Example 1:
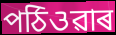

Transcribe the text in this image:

পঠিওৱাৰ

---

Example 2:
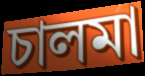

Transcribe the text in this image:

চালমা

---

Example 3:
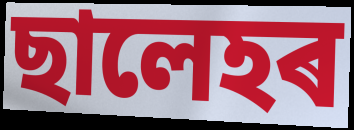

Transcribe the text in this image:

ছালেহৰ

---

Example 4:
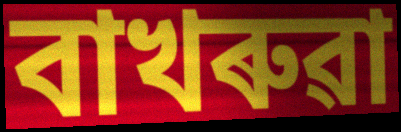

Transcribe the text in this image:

বাখৰুৱা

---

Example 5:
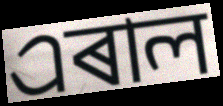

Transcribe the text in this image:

এৰাল